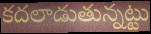
కదలాడుతున్నట్టు